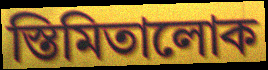
স্তিমিতালোক